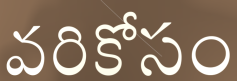
వరికోసం